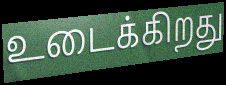
உடைக்கிறது